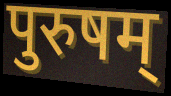
पुरुषम्